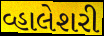
વ્હાલેશરી